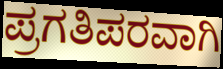
ಪ್ರಗತಿಪರವಾಗಿ